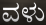
ವಳು